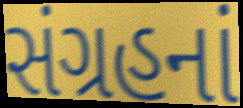
સંગ્રહનાં